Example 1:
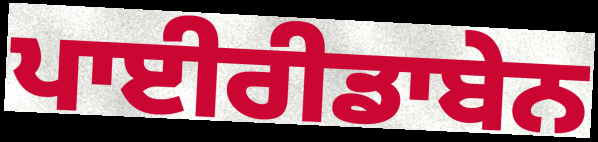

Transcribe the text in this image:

ਪਾਈਰੀਡਾਬੇਨ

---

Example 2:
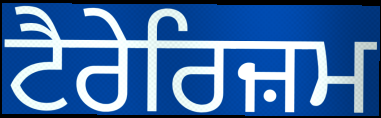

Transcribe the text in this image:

ਟੈਰੇਰਿਜ਼ਮ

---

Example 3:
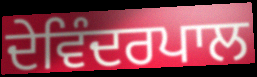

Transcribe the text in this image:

ਦੇਵਿੰਦਰਪਾਲ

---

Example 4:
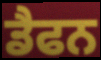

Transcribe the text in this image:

ਡੈਫਨ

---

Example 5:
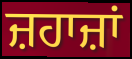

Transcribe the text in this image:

ਜ਼ਹਾਜ਼ਾਂ